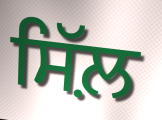
ਸਿੱਲ਼